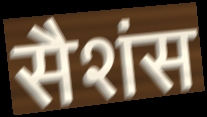
सैशंस